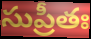
సుప్రీతః